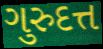
ગુરુદત્ત